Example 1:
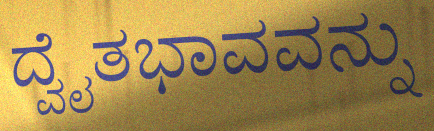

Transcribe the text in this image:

ದ್ವೈತಭಾವವನ್ನು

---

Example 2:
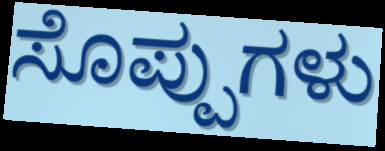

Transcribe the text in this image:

ಸೊಪ್ಪುಗಳು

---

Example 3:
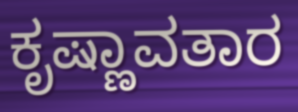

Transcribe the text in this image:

ಕೃಷ್ಣಾವತಾರ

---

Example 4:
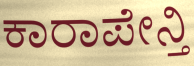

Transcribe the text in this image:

ಕಾರಾಪೇನ್ತಿ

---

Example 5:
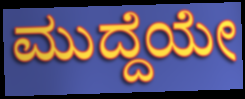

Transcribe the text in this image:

ಮುದ್ದೆಯೇ